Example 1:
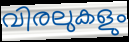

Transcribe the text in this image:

വിരലുകളും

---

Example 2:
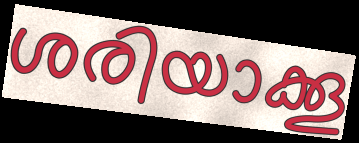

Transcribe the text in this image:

ശരിയാക്കൂ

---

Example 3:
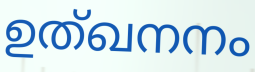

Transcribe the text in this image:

ഉത്ഖനനം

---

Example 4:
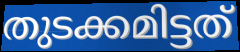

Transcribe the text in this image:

തുടക്കമിട്ടത്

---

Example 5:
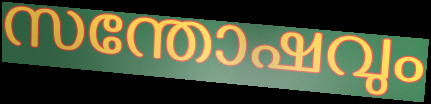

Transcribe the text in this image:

സന്തോഷവും